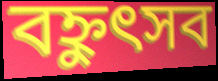
বহ্নুৎসব